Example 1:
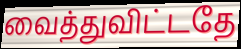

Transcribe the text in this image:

வைத்துவிட்டதே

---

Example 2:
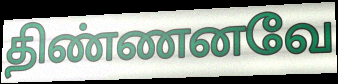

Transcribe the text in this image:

திண்ணனவே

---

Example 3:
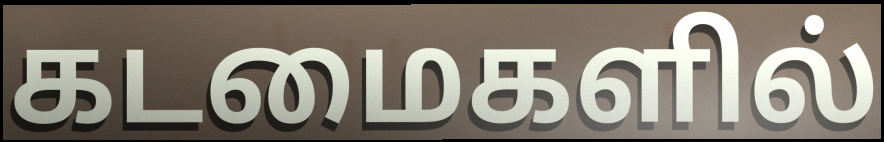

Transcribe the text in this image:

கடமைகளில்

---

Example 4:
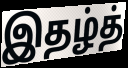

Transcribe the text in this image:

இதழ்த்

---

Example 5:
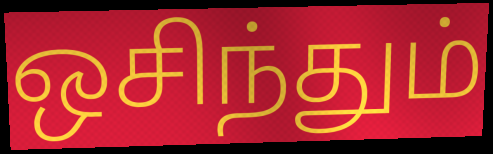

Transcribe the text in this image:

ஒசிந்தும்